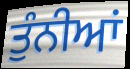
ਤੁੰਨੀਆਂ